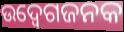
ଉଦ୍ବେଗଜନକ